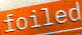
foiled